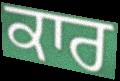
ਕਾਰ